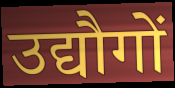
उद्यौगों